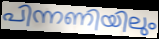
പിന്നണിയിലും